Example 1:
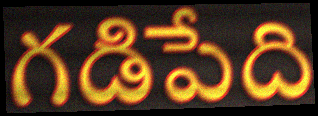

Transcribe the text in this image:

గడిపేది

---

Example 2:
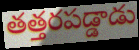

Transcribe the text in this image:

తత్తరపడ్డాడు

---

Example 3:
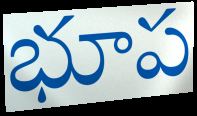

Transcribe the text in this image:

భూప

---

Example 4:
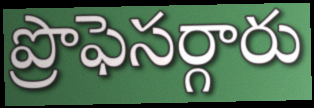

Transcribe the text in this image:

ప్రొఫెసర్గారు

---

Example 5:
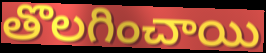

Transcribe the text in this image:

తొలగించాయి